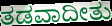
ತಡವಾದೀತು